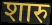
शारु